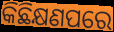
କିଛିକ୍ଷଣପରେ